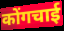
कोंगचाई